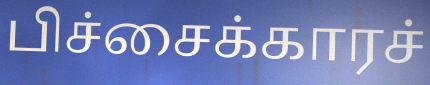
பிச்சைக்காரச்